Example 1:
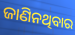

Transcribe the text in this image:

ଜାଣିନଥିବାର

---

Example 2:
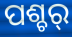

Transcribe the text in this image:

ପଶ୍ଚର୍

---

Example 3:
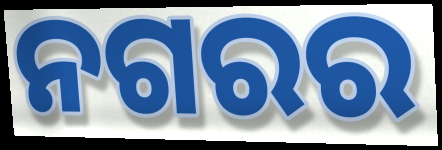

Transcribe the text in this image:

ନଗରର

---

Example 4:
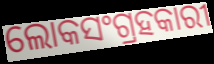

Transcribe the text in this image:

ଲୋକସଂଗ୍ରହକାରୀ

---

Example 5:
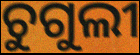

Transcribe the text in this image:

ଚୁଗୁଲୀ